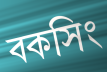
বকসিং